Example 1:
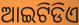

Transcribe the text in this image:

ଆଇଟିଡିଏ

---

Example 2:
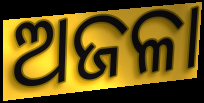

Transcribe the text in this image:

ଅଜଳା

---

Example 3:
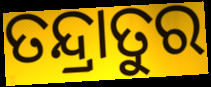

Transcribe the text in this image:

ତନ୍ଦ୍ରାତୁର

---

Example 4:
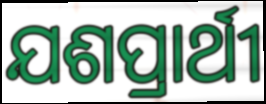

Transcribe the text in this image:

ଯଶପ୍ରାର୍ଥୀ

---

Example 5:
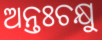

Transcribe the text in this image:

ଅନ୍ତଃଚକ୍ଷୁ